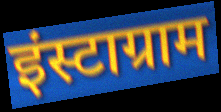
इंस्टाग्राम